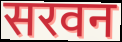
सरवन